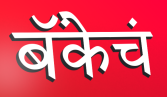
बॅंकेचं